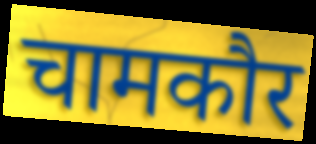
चामकौर